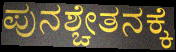
ಪುನಶ್ಚೇತನಕ್ಕೆ